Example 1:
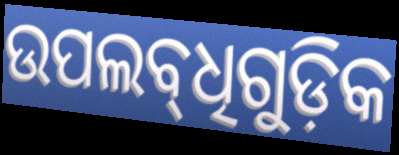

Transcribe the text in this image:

ଉପଲବ୍‌ଧିଗୁଡ଼ିକ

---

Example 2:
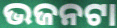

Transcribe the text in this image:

ଭଜନଟା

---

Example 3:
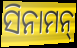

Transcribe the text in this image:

ସିନାମନ୍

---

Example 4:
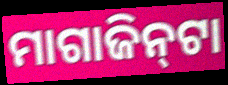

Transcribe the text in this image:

ମାଗାଜିନ୍‌ଟା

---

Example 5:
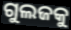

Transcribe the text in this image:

ଗୁଲଜକୁ